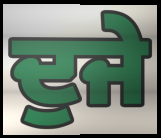
ਦੁਜੇ